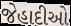
જેહાદીઓ